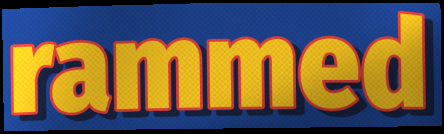
rammed